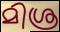
മിശ്ര